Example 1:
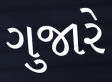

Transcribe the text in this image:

ગુજારે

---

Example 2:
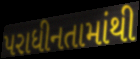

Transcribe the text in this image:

પરાધીનતામાંથી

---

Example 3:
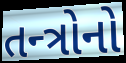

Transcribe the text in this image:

તન્ત્રોનો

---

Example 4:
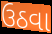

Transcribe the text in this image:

ઉઠવા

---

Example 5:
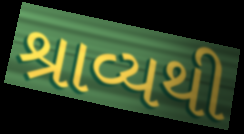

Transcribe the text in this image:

શ્રાવ્યથી